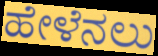
ಹೇಳೆನಲು